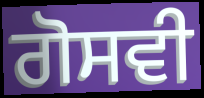
ਗੋਸਵੀ